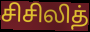
சிசிலித்